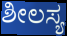
ಶೀಲಸ್ಯ